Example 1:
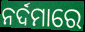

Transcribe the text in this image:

ନର୍ଦମାରେ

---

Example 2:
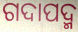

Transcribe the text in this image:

ଗଦାପଦ୍ମ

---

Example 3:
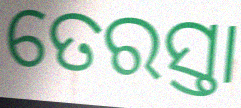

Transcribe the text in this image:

ତେରସ୍ତା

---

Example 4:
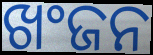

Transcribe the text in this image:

ଖଂଜନ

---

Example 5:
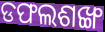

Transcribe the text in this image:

ଡଫଲଶଙ୍ଖ